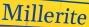
Millerite